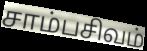
சாம்பசிவம்